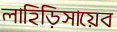
লাহিড়িসায়েব